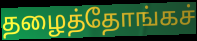
தழைத்தோங்கச்